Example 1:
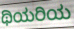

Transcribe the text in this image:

ಥಿಯರಿಯ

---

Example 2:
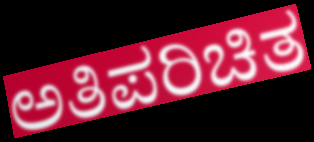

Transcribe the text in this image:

ಅತಿಪರಿಚಿತ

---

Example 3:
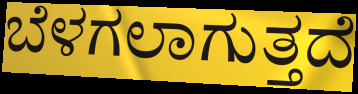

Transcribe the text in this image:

ಬೆಳಗಲಾಗುತ್ತದೆ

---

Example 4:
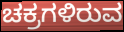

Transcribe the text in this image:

ಚಕ್ರಗಳಿರುವ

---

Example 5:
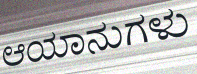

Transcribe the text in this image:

ಆಯಾನುಗಳು